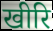
खीरि